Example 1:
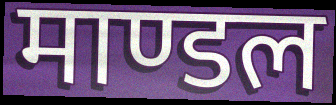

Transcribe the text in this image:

माण्डल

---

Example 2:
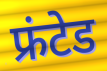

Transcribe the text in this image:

फ्रंटेड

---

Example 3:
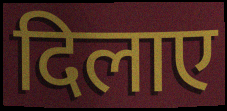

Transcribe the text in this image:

दिलाए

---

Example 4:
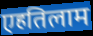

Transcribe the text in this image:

एहतिलाम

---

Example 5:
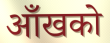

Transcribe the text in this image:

आँखको